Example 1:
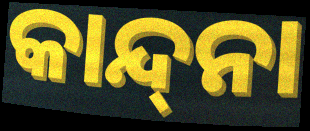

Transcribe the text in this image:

କାନ୍ଦ୍‌ନା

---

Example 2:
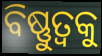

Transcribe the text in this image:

ବିଷ୍ଣୁତ୍ୱକୁ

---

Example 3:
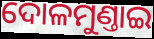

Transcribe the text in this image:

ଦୋଳମୁଣ୍ତାଇ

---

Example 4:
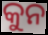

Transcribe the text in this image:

କୁନ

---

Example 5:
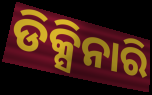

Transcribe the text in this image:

ଡିକ୍ସିନାରି